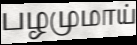
பழமுமாய்